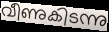
വീണുകിടന്നു